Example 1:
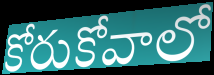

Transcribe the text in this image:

కోరుకోవాలో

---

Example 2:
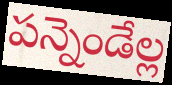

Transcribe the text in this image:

పన్నెండేల్ల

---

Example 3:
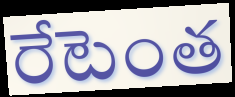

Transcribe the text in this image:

రేటెంత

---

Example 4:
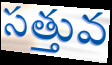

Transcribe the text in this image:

సత్తువ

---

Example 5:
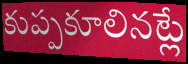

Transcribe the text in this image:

కుప్పకూలినట్లే